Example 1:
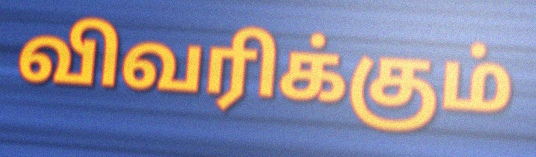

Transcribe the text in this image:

விவரிக்கும்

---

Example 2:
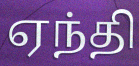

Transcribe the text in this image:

ஏந்தி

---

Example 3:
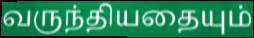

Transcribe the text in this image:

வருந்தியதையும்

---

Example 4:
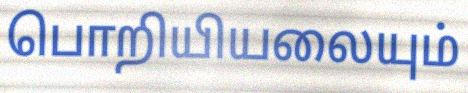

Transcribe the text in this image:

பொறியியலையும்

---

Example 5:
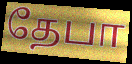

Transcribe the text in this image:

தேபா